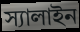
স্যালাইন